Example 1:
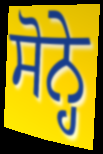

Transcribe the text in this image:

ਸੋਨ੍ਹੇ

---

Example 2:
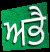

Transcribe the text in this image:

ਅਭੈ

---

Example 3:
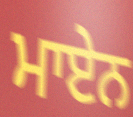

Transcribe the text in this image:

ਮਾਏਨ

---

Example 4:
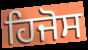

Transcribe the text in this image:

ਹਿਜੋਸ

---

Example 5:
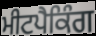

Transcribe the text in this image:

ਮੀਟਪੈਕਿੰਗ